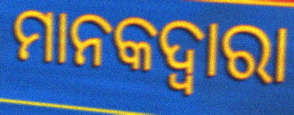
ମାନକଦ୍ୱାରା